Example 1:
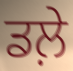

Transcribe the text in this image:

ਡਲ਼ੇ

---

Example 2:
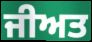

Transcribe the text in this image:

ਜੀਅਤ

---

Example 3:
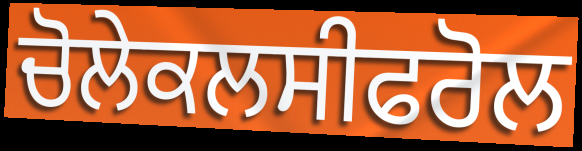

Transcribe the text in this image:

ਚੋਲੇਕਲਸੀਫਰੋਲ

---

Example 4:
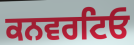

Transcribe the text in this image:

ਕਨਵਰਟਿਓ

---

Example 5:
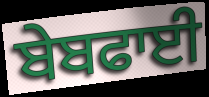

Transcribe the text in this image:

ਬੇਬਫਾਈ